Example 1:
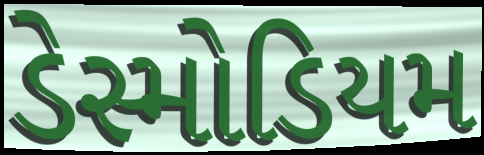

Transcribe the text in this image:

ડેસ્મોડિયમ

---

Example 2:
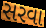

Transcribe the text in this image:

સરવા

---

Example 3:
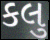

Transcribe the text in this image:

કલુ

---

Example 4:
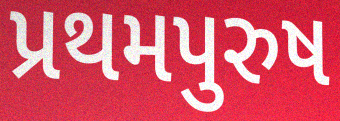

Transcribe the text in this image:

પ્રથમપુરુષ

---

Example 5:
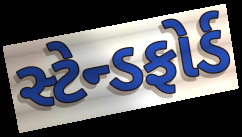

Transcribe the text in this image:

સ્ટેન્ડફોર્ડ